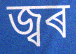
জ্বৰ